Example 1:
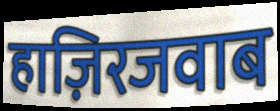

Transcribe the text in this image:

हाज़िरजवाब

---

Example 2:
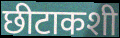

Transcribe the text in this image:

छीटाकशी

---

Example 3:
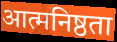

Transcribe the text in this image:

आत्मनिष्ठता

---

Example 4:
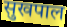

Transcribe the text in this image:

सुखपाल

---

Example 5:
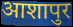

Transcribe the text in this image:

आशापुर